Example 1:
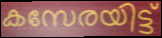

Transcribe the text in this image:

കസേരയിട്ട്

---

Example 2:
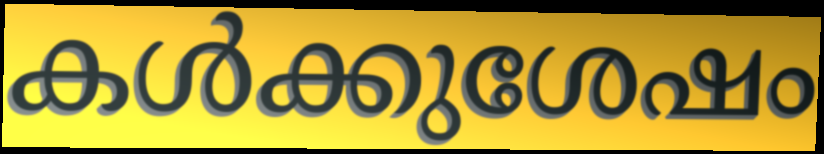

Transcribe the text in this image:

കൾക്കുശേഷം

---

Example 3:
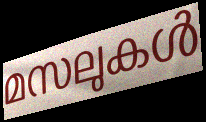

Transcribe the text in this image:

മസലുകൾ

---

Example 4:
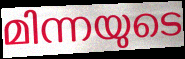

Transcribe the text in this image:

മിന്നയുടെ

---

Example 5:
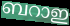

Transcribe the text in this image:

ബറാഇ